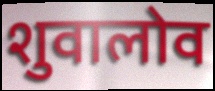
शुवालोव